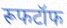
रूफटॉफ